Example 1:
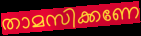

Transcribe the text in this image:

താമസിക്കണേ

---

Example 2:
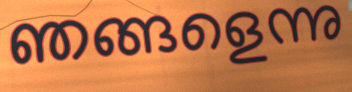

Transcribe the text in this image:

ഞങ്ങളെന്നു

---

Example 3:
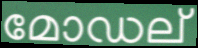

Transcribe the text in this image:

മോഡല്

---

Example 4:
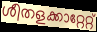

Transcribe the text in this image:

ശീതളക്കാറ്റേറ്റ്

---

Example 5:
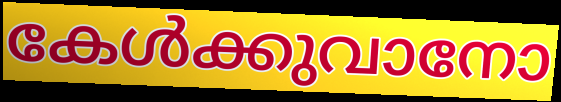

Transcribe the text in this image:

കേൾക്കുവാനോ